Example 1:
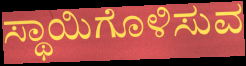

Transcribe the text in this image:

ಸ್ಥಾಯಿಗೊಳಿಸುವ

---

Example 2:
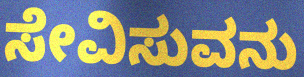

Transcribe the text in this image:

ಸೇವಿಸುವನು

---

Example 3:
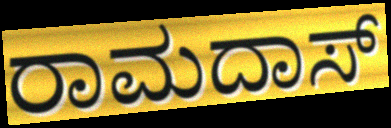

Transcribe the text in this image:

ರಾಮದಾಸ್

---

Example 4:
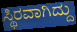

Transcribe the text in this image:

ಸ್ಥಿರವಾಗಿದ್ದು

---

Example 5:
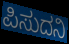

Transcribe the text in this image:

ಪಿಸುದನಿ